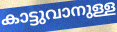
കാട്ടുവാനുള്ള